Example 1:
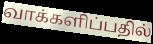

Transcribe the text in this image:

வாக்களிப்பதில்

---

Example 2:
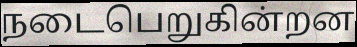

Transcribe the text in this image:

நடைபெறுகின்றன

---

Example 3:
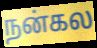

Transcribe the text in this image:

நன்கல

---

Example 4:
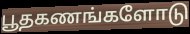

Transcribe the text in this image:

பூதகணங்களோடு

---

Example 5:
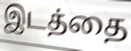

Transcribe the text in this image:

இடத்தை